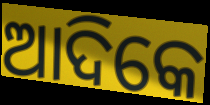
ଆଦିକେ